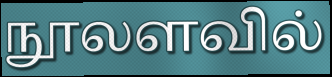
நூலளவில்